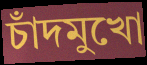
চাঁদমুখো